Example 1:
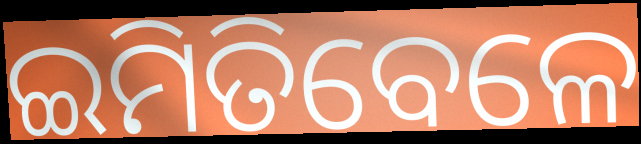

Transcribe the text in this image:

ଇମିତିବେଳେ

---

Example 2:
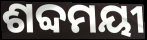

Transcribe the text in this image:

ଶବ୍ଦମୟୀ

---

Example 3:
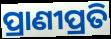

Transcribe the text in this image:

ପ୍ରାଣୀପ୍ରତି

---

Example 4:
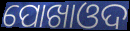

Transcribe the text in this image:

ପୋଖାଓଦ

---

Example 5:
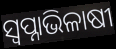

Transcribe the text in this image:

ସ୍ଵପ୍ନାଭିଳାଷୀ